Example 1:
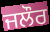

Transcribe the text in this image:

ਜਲੌਰ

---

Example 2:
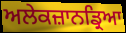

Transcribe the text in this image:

ਅਲੇਕਜ਼ਾਨਡ੍ਰਿਆ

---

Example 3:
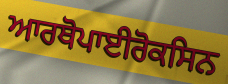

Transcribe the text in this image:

ਆਰਥੋਪਾਈਰੋਕਸਿਨ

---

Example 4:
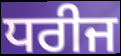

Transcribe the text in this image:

ਧਰੀਜ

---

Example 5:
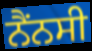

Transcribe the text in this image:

ਨੈਂਨਸੀ